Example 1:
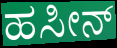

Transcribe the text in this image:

ಹಸೀನ್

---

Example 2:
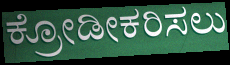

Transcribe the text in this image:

ಕ್ರೋಡೀಕರಿಸಲು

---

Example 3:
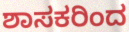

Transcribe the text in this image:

ಶಾಸಕರಿಂದ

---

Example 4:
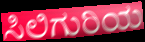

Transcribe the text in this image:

ಸಿಲಿಗುರಿಯ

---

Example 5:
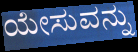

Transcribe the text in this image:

ಯೇಸುವನ್ನು